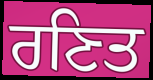
ਰਣਿਤ